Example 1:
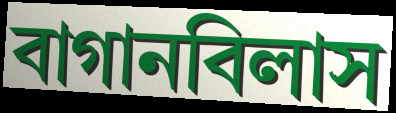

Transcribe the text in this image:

বাগানবিলাস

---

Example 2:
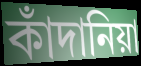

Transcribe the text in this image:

কাঁদানিয়া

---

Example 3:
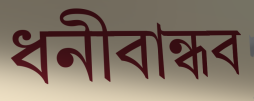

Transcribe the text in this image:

ধনীবান্ধব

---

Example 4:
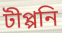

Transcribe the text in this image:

টীপ্পনি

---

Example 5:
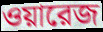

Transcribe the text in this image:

ওয়ারেজ